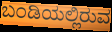
ಬಂಡಿಯಲ್ಲಿರುವ